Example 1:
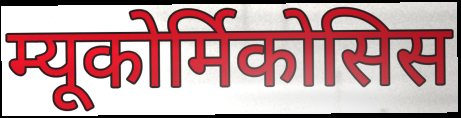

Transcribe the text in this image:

म्यूकोर्मिकोसिस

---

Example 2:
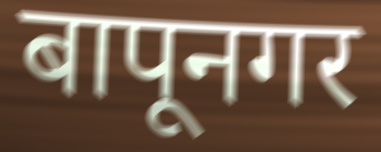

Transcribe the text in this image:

बापूनगर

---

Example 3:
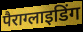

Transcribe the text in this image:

पैराग्लाइडिंग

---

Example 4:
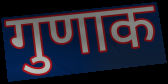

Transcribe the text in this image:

गुणाक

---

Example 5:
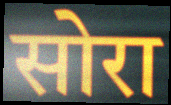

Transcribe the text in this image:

सोरा